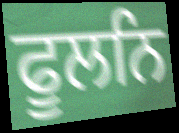
ਫੂਲਨਿ